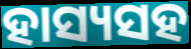
ହାସ୍ୟସହ